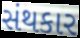
સંથકાર